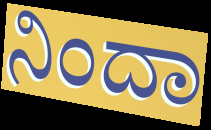
ನಿಂದಾ